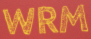
WRM